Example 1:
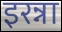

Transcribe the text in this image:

इरन्ना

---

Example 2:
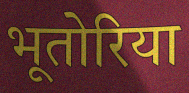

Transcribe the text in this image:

भूतोरिया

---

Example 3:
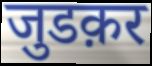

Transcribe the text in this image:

जुडक़र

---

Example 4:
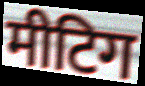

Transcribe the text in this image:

मीटिग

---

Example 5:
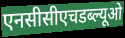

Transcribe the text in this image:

एनसीसीएचडब्ल्यूओ